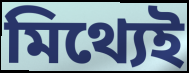
মিথ্যেই